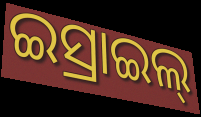
ଇସ୍ରାଇଲ୍